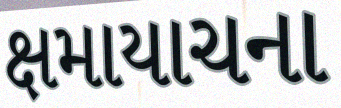
ક્ષમાયાચના